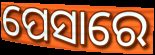
ପେସାରେ